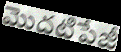
మొదటిపేజీ